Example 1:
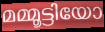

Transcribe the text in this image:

മമ്മൂട്ടിയോ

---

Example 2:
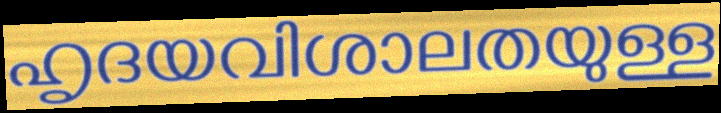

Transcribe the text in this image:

ഹൃദയവിശാലതയുള്ള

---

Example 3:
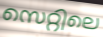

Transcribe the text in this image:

സെറ്റിലെ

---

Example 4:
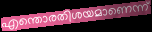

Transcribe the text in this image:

എന്തൊരതിശയമാണെന്ന്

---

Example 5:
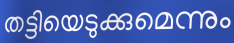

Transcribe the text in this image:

തട്ടിയെടുക്കുമെന്നും